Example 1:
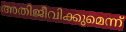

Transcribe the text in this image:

അതിജീവിക്കുമെന്ന്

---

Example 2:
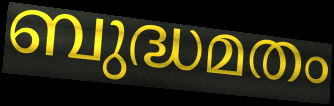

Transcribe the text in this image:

ബുദ്ധമതം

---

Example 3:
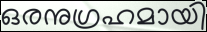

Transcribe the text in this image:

ഒരനുഗ്രഹമായി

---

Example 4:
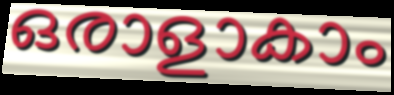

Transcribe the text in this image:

ഒരാളാകാം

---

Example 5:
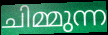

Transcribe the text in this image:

ചിമ്മുന്ന